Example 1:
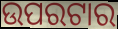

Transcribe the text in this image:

ଉପରଟାର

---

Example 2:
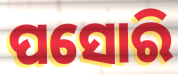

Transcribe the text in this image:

ପସୋରି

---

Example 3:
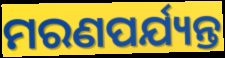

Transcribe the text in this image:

ମରଣପର୍ଯ୍ୟନ୍ତ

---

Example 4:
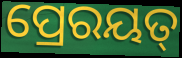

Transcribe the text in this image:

ପ୍ରେରୟତ୍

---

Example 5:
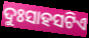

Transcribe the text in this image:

ଦୁଃସାହସଟିଏ